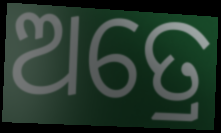
ଅତ୍ରେ